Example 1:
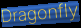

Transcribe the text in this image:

Dragonfly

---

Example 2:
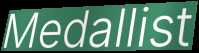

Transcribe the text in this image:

Medallist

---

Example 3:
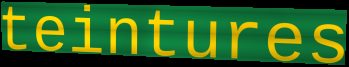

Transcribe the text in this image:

teintures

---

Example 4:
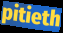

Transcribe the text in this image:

pitieth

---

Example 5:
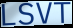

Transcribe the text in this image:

LSVT